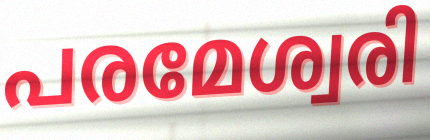
പരമേശ്വരി